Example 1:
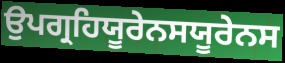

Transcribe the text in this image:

ਉਪਗ੍ਰਹਿਯੂਰੇਨਸਯੂਰੇਨਸ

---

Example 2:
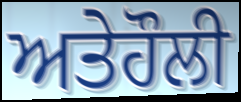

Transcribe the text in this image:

ਅਤੇਹੌਲੀ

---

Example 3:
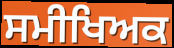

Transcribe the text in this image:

ਸਮੀਖਿਅਕ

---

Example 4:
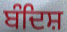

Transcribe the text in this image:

ਬੰਦਿਸ਼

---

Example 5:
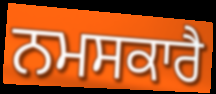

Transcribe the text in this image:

ਨਮਸਕਾਰੈ